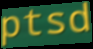
ptsd